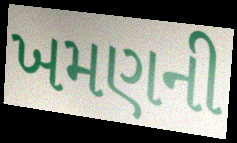
ખમણની